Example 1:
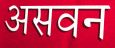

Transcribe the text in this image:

असवन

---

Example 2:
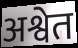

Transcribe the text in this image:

अश्वेत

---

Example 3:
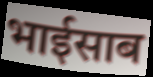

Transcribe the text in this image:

भाईसाब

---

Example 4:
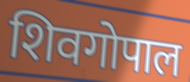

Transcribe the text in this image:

शिवगोपाल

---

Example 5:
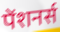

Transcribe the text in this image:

पेंशनर्स